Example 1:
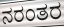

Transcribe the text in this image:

ನರಂತರ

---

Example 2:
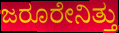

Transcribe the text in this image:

ಜರೂರೇನಿತ್ತು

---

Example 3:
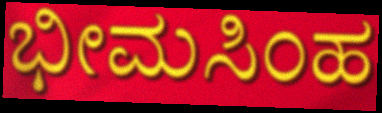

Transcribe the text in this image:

ಭೀಮಸಿಂಹ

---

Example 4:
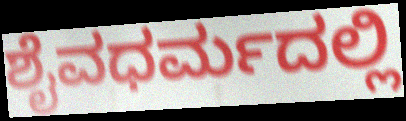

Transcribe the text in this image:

ಶೈವಧರ್ಮದಲ್ಲಿ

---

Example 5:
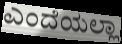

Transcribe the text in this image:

ಎಂದೆಯಲ್ಲಾ